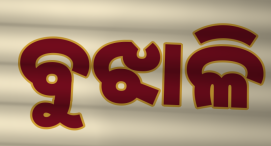
ବୁଝାଳି